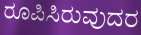
ರೂಪಿಸಿರುವುದರ